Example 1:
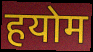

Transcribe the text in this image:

हयोम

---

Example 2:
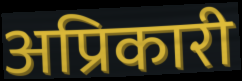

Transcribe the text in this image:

अप्रिकारी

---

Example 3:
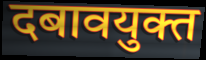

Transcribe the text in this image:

दबावयुक्त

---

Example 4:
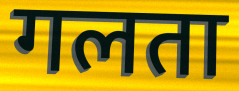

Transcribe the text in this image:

गलता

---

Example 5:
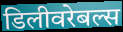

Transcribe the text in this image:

डिलीवरेबल्स